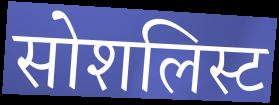
सोशलिस्ट